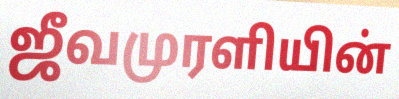
ஜீவமுரளியின்